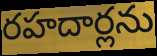
రహదార్లను